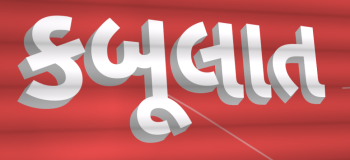
કબૂલાત